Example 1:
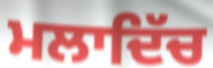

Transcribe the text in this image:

ਮਲਾਦਿੱਚ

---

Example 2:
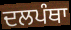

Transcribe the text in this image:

ਦਲਪੰਥਾ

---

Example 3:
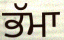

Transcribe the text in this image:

ਭੱਮਾ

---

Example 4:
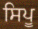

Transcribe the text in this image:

ਸਿਪੂ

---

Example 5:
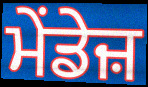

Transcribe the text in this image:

ਮੇਂਡੇਜ਼